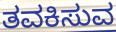
ತವಕಿಸುವ